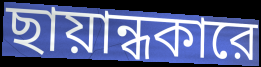
ছায়ান্ধকারে